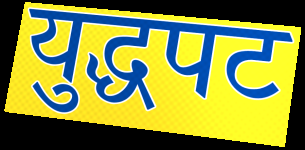
युद्धपट